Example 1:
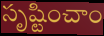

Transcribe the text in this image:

సృష్టించాం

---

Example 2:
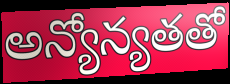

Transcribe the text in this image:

అన్యోన్యతతో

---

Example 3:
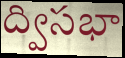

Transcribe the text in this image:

ద్విసభా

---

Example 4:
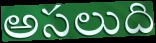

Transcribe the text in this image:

అసలుది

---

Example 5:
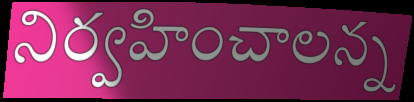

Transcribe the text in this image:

నిర్వహించాలన్న